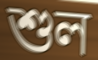
শুল